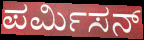
ಪರ್ಮಿಸನ್